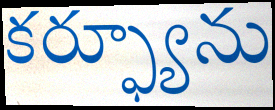
కర్ఫ్యూను